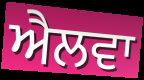
ਐਲਵਾ